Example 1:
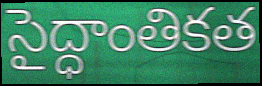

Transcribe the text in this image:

సైద్ధాంతికత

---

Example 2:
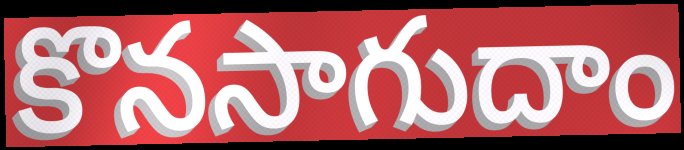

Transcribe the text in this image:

కొనసాగుదాం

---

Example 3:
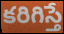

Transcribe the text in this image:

కరిగిస్తే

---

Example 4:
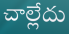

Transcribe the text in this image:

చాల్లేదు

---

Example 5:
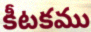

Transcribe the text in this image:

కీటకము